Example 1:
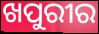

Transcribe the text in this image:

ଖପୁରୀର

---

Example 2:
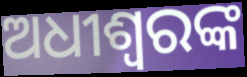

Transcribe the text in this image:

ଅଧୀଶ୍ୱରଙ୍କ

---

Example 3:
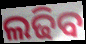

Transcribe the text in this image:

ଲଢିବ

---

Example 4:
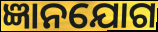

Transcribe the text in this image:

ଜ୍ଞାନଯୋଗ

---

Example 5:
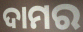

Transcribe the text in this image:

ଦାମର